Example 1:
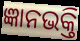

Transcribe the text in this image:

ଜ୍ଞାନଭକ୍ତି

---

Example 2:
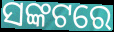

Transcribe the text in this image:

ସଙ୍କଟରେ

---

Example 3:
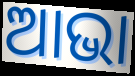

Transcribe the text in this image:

ଆଭା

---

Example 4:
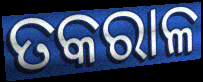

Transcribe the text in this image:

ତକରାଳ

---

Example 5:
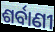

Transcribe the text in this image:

ଶର୍ବାଣୀ